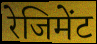
रेजिमेंट